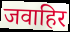
जवाहिर